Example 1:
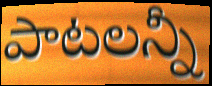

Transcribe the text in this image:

పాటలన్నీ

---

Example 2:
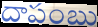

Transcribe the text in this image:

దాపంబు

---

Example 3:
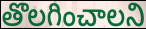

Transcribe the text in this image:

తొలగించాలని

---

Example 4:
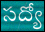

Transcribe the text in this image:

సద్యో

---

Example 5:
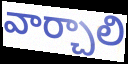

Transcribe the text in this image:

వార్చాలి